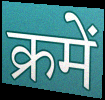
क्रमें